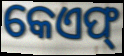
କେଏଫ୍